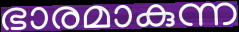
ഭാരമാകുന്ന